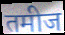
तमीज